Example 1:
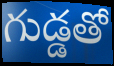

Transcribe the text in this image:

గుడ్డతో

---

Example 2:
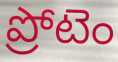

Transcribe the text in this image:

ప్రోటెం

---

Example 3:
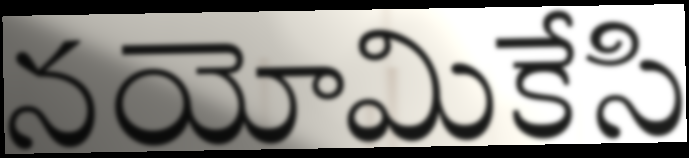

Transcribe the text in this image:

నయోమికేసి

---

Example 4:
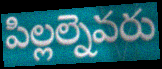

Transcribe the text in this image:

పిల్లల్నెవరు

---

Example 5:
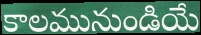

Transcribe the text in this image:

కాలమునుండియే